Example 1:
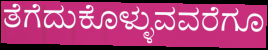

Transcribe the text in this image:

ತೆಗೆದುಕೊಳ್ಳುವವರೆಗೂ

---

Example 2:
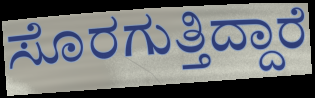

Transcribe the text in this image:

ಸೊರಗುತ್ತಿದ್ದಾರೆ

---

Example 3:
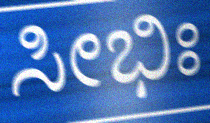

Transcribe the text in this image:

ಸೀಭಿಃ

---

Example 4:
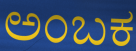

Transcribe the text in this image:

ಅಂಬಕ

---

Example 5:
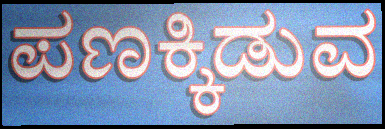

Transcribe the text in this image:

ಪಣಕ್ಕಿಡುವ